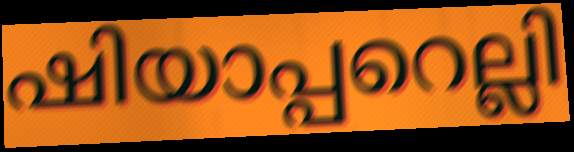
ഷിയാപ്പറെല്ലി